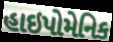
હાઇપોમેનિક